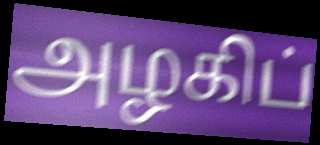
அழகிப்